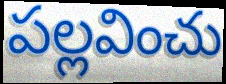
పల్లవించు